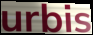
urbis